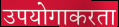
उपयोगाकरता